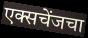
एक्सचेंजचा